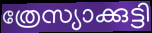
ത്രേസ്യാക്കുട്ടി